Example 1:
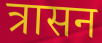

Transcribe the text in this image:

त्रासन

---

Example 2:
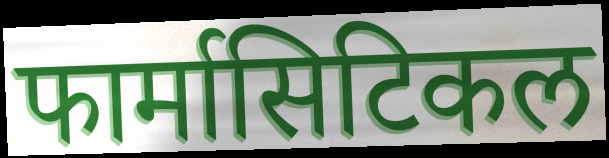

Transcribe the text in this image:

फार्मासिटिकल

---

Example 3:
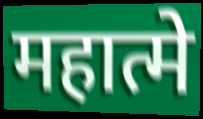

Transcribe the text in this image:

महात्मे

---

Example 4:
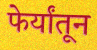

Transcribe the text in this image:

फेर्यांतून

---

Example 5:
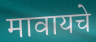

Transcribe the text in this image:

मावायचे